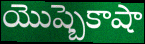
యొష్బెకాషా